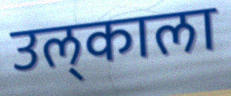
उल्काला